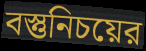
বস্তুনিচয়ের